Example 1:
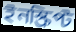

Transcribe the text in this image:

ইনস্ক্রিপ্ট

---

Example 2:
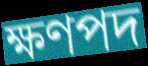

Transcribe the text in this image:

ক্ষণপদ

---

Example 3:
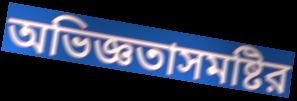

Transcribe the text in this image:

অভিজ্ঞতাসমষ্টির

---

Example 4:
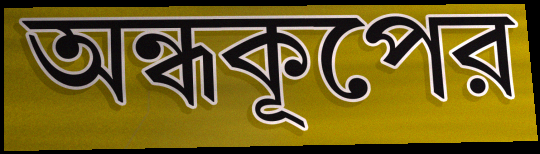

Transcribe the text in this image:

অন্ধকূপের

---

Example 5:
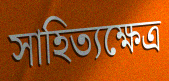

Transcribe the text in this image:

সাহিত্যক্ষেত্র